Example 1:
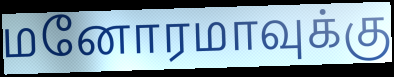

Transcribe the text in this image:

மனோரமாவுக்கு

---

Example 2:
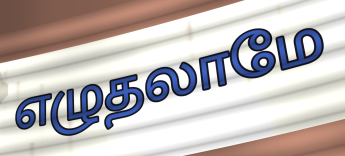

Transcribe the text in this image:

எழுதலாமே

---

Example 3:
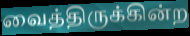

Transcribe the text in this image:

வைத்திருக்கின்ற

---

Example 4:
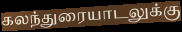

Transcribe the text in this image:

கலந்துரையாடலுக்கு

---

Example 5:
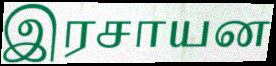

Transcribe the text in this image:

இரசாயன